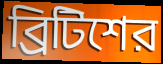
ব্রিটিশের